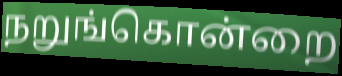
நறுங்கொன்றை